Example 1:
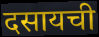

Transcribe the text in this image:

दसायची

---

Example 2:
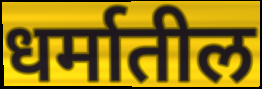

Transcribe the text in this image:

धर्मातील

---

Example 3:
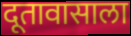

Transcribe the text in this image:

दूतावासाला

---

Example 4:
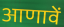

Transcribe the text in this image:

आणावें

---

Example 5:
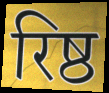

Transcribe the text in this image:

रिष्ठ